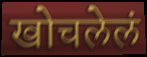
खोचलेलं